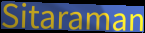
Sitaraman